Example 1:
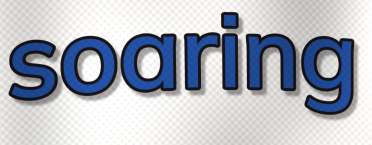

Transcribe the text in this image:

soaring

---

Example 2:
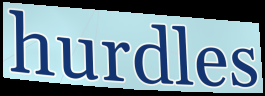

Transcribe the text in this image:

hurdles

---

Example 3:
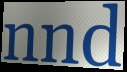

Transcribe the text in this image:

nnd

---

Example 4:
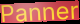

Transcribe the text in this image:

Panner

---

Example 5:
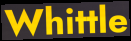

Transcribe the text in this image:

Whittle